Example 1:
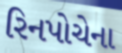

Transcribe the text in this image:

રિનપોચેના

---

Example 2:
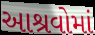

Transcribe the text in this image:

આશ્રવોમાં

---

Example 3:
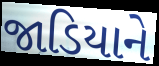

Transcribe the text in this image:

જાડિયાને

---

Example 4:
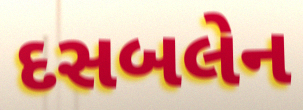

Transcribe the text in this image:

દસબલેન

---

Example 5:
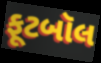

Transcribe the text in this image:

ફૂટબૉલ